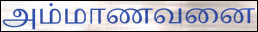
அம்மாணவனை